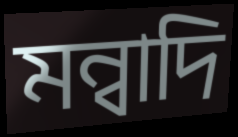
মন্বাদি